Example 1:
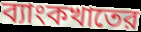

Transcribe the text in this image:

ব্যাংকখাতের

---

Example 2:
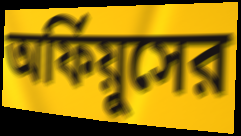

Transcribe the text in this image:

অর্ফিয়ুসের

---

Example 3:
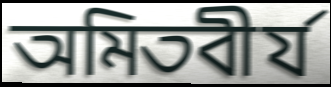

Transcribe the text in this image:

অমিতবীর্য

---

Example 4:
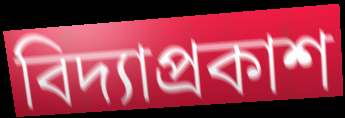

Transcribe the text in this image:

বিদ্যাপ্রকাশ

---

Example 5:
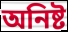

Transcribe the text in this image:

অনিষ্ট